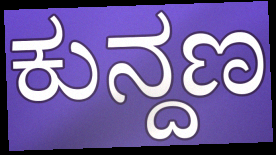
ಕುನ್ದಣ